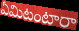
ఏమిటంటారా